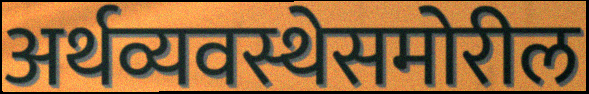
अर्थव्यवस्थेसमोरील